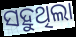
ସହୁଥିଲା